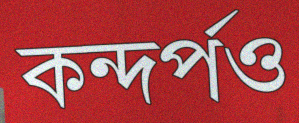
কন্দর্পও